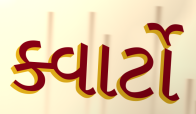
ક્વાર્ટો